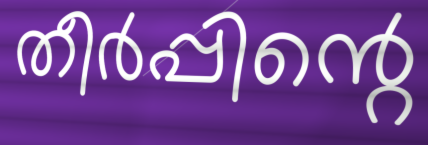
തീർപ്പിന്റെ